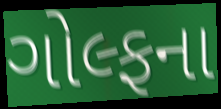
ગોલ્ફના